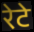
रेटे